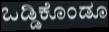
ಒಡ್ಡಿಕೊಂಡೂ